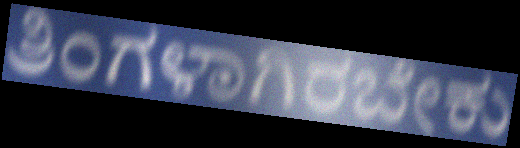
ತಿಂಗಳಾಗಿರಬೇಕು